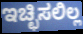
ಇಚ್ಛಿಸಲಿಲ್ಲ